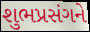
શુભપ્રસંગને